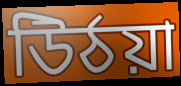
উিঠয়া